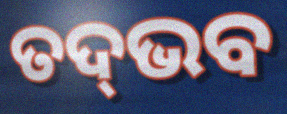
ତଦ୍‌ଭବ